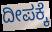
ದೀಪಕ್ಕೆ